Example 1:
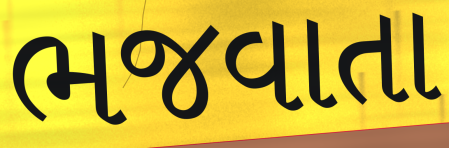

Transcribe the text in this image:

ભજવાતા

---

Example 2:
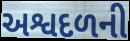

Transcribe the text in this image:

અશ્વદળની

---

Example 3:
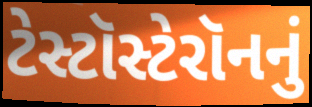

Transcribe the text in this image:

ટેસ્ટૉસ્ટેરૉનનું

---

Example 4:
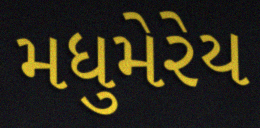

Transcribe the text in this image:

મધુમેરેય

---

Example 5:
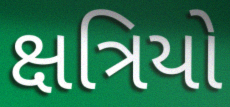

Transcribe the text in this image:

ક્ષત્રિયો